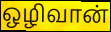
ஒழிவான்